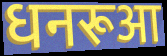
धनरूआ